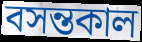
বসন্তকাল